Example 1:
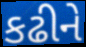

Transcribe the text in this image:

કઢીને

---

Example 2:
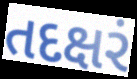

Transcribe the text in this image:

તદક્ષરં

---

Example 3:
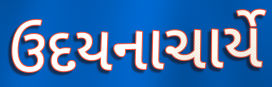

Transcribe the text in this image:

ઉદયનાચાર્યે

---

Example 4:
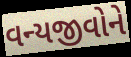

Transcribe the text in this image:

વન્યજીવોને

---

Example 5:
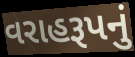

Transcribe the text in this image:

વરાહરૂપનું